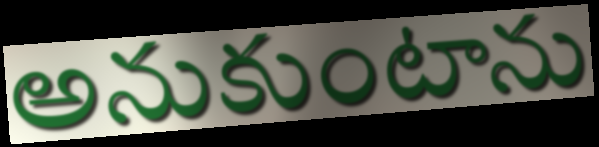
అనుకుంటాను